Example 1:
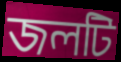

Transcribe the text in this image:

জলটি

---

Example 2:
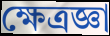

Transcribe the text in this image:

ক্ষেত্রজ্ঞা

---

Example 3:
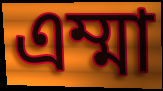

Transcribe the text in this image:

এম্মা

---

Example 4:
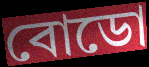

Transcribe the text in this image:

বোডো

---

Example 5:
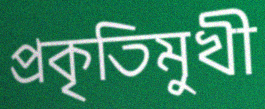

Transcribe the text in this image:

প্রকৃতিমুখী